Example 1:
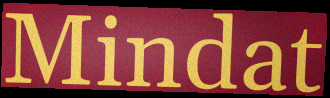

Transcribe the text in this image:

Mindat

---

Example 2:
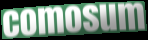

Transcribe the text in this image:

comosum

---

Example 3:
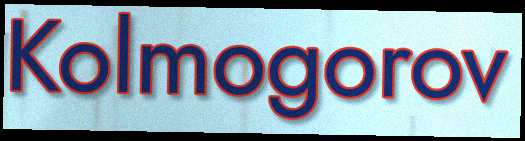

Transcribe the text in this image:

Kolmogorov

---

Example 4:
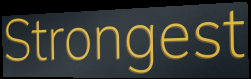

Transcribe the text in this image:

Strongest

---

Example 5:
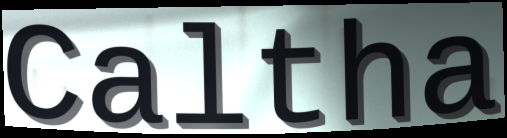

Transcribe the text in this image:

Caltha